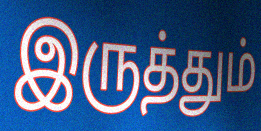
இருத்தும்